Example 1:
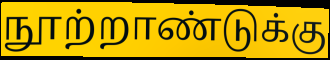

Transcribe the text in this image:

நூற்றாண்டுக்கு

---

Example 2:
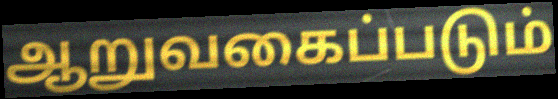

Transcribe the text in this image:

ஆறுவகைப்படும்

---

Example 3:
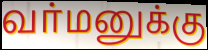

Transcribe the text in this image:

வர்மனுக்கு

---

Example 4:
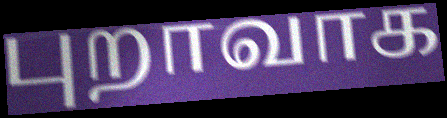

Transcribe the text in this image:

புறாவாக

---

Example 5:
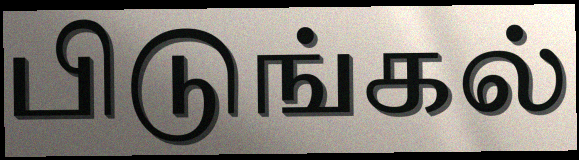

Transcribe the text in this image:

பிடுங்கல்